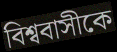
বিশ্ববাসীকে